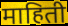
माहिती